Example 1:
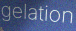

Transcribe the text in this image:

gelation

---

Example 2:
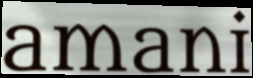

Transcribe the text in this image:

amani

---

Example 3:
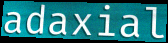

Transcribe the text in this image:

adaxial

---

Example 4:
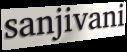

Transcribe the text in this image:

sanjivani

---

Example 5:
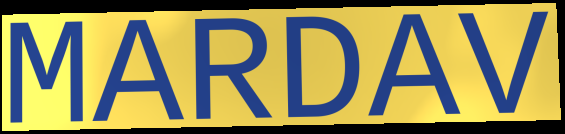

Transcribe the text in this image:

MARDAV